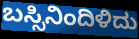
ಬಸ್ಸಿನಿಂದಿಳಿದು